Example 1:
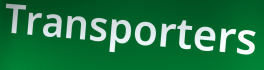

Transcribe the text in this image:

Transporters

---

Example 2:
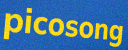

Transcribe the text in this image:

picosong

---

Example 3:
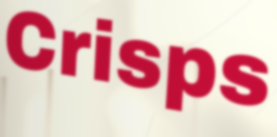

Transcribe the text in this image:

Crisps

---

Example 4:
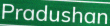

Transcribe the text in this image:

Pradushan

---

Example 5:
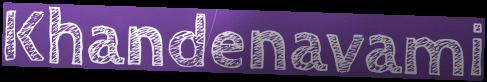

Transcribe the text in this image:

Khandenavami